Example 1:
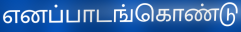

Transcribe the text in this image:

எனப்பாடங்கொண்டு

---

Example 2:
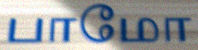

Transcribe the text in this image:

பாமோ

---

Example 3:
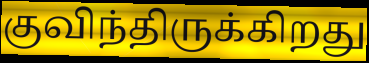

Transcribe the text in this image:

குவிந்திருக்கிறது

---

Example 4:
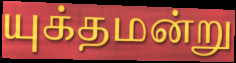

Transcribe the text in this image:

யுக்தமன்று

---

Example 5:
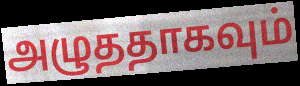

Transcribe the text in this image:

அழுததாகவும்